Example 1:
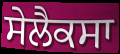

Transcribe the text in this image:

ਸੇਲੈਕਸਾ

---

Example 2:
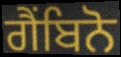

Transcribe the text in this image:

ਗੈਂਬਿਨੋ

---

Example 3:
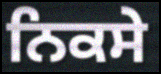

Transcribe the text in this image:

ਨਿਕਸੇ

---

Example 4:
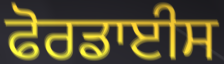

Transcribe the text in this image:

ਫੋਰਡਾਈਸ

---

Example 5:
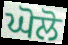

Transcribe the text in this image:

ਘੋਲੋ